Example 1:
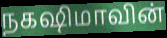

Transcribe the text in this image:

நகஷிமாவின்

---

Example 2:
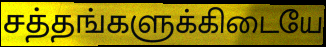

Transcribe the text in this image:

சத்தங்களுக்கிடையே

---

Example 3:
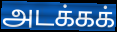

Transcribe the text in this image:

அடக்கக்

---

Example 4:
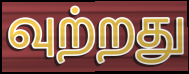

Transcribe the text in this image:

வுற்றது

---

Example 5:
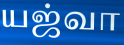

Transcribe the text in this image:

யஜ்வா